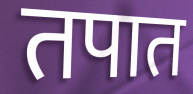
तपात